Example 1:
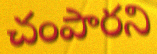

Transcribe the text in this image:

చంపారని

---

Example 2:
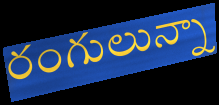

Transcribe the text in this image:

రంగులున్నా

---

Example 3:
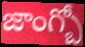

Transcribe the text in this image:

జాంగ్బో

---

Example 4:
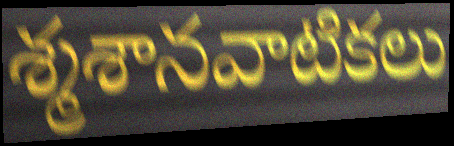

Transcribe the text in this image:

శ్మశానవాటికలు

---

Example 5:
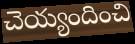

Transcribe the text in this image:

చెయ్యందించి